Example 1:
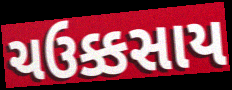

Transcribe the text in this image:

ચઉક્કસાય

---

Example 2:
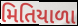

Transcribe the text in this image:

મિતિયાળા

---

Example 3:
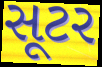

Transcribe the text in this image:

સૂટર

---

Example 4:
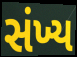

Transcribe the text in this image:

સંખ્ય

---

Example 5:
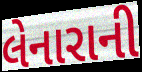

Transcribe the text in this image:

લેનારાની